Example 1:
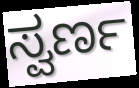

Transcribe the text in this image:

ಸ್ವರ್ಣ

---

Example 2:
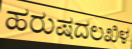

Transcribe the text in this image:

ಹರುಷದಲಖಿಳ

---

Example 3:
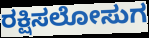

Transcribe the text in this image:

ರಕ್ಷಿಸಲೋಸುಗ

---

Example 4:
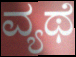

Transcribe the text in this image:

ವ್ಯಥೆ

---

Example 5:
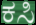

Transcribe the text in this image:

ಕಸಿ